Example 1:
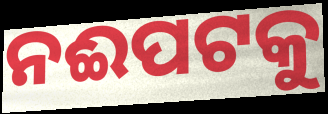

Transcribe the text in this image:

ନଈପଟକୁ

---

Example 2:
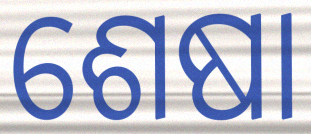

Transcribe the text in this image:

ଶେଷା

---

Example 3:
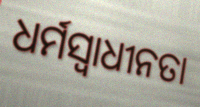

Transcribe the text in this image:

ଧର୍ମସ୍ୱାଧୀନତା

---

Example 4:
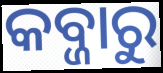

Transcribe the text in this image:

କବ୍ଜାରୁ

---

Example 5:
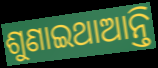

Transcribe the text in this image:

ଶୁଣାଇଥାଆନ୍ତି